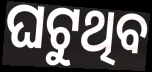
ଘଟୁଥିବ